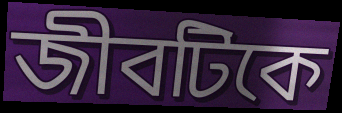
জীবটিকে